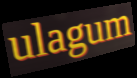
ulagum